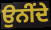
ਉਨੀਂਦੇ